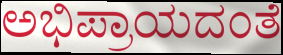
ಅಭಿಪ್ರಾಯದಂತೆ